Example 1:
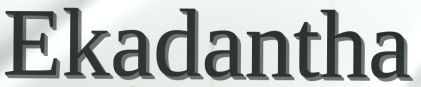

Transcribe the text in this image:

Ekadantha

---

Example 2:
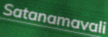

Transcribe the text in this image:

Satanamavali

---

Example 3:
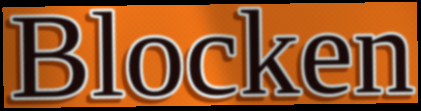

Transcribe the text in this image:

Blocken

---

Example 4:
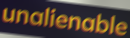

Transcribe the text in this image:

unalienable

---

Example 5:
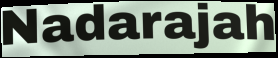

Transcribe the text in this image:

Nadarajah